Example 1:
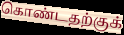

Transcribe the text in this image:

கொண்டதற்குக்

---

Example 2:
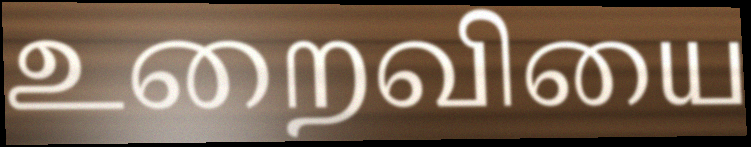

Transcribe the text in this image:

உறைவியை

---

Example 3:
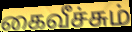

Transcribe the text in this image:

கைவீச்சும்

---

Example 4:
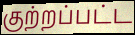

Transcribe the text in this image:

குற்றப்பட்ட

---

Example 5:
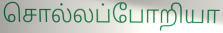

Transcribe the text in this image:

சொல்லப்போறியா